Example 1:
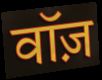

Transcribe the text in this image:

वॉज़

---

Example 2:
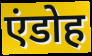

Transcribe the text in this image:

एंडोह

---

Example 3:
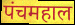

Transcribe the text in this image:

पंचमहाल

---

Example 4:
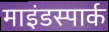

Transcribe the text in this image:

माइंडस्पार्क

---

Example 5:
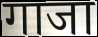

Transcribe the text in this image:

गाजा